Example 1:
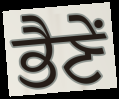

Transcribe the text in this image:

ਭੈਣੇਂ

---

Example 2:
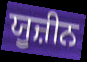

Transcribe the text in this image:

ਯੂਜ਼ੀਨ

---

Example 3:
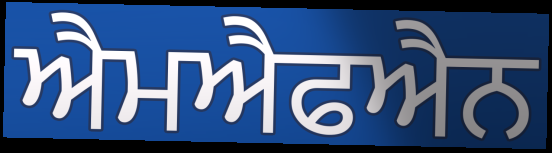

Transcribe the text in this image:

ਐਮਐਫਐਨ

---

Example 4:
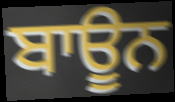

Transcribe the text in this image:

ਬਾਊਨ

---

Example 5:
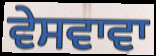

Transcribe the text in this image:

ਵੇਸਵਾਵਾ